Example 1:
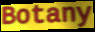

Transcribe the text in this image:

Botany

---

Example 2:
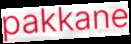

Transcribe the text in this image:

pakkane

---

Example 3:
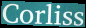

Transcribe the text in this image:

Corliss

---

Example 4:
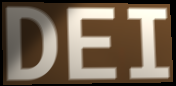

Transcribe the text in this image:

DEI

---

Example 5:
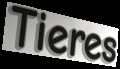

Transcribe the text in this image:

Tieres